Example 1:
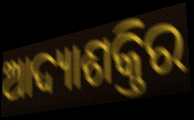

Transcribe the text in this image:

ଆଦ୍ୟାଶକ୍ତିର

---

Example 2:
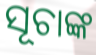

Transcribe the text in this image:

ସୂଚାଙ୍କ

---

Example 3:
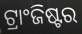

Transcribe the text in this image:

ଟ୍ରାଂଜିଷ୍ଟର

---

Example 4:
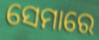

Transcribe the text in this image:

ସେମାରେ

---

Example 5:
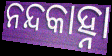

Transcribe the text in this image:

ନନ୍ଦକାହ୍ନା